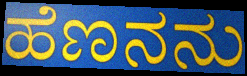
ಹೆಣನನು